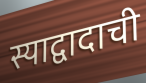
स्याद्वादाची